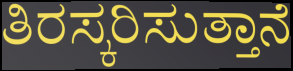
ತಿರಸ್ಕರಿಸುತ್ತಾನೆ